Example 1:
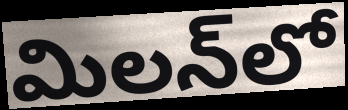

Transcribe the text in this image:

మిలన్‌లో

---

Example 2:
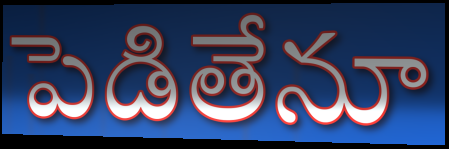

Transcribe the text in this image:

పెడితేనూ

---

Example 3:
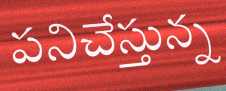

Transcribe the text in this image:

పనిచేస్తున్న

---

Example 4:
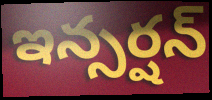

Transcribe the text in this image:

ఇన్సర్షన్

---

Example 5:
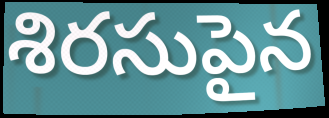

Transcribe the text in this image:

శిరసుపైన